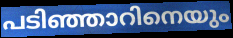
പടിഞ്ഞാറിനെയും